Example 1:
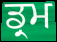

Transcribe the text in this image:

ਡ੍ਰਮ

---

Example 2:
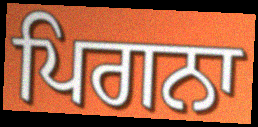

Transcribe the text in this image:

ਪਿਗਨਾ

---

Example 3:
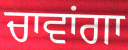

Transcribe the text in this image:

ਚਾਵਾਂਗਾ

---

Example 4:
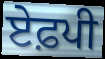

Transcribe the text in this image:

ਏਫ਼ਪੀ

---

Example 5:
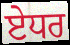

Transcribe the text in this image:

ਏਧਰ